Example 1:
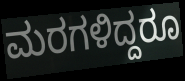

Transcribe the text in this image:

ಮರಗಳಿದ್ದರೂ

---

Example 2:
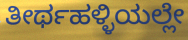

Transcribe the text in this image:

ತೀರ್ಥಹಳ್ಳಿಯಲ್ಲೇ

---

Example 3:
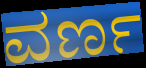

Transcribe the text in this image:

ವರ್ಣ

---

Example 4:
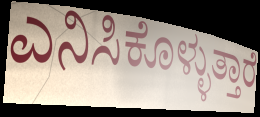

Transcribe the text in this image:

ಎನಿಸಿಕೊಳ್ಳುತ್ತಾರೆ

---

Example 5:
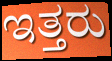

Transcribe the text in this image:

ಇತ್ತರು